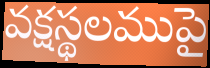
వక్షస్థలముపై